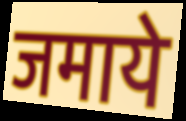
जमाये